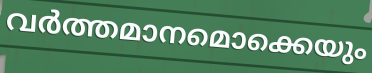
വർത്തമാനമൊക്കെയും